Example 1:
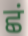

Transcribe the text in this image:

ਛਂ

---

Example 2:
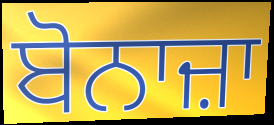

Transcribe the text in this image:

ਬੋਨਾਜ਼ਾ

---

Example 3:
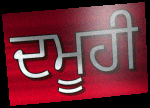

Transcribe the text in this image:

ਦਮੂਹੀ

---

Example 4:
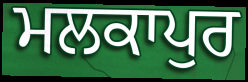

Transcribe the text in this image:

ਮਲਕਾਪੁਰ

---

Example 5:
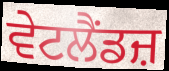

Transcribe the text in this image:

ਵੇਟਲੈਂਡਜ਼